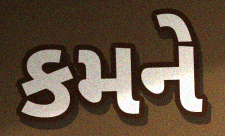
કમને